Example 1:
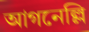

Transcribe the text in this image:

আগনেল্লি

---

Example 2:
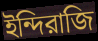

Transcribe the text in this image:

ইন্দিরাজি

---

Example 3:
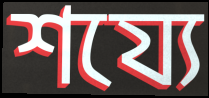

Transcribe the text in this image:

শয্যে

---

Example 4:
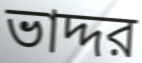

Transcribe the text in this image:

ভাদ্দর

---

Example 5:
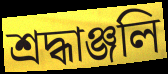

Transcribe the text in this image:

শ্রদ্ধাঞ্জলি